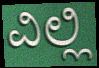
ವಿಲ್ಲಿ